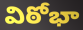
విఠోభా